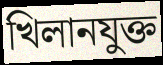
খিলানযুক্ত